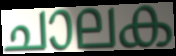
ചാലക